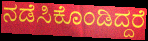
ನಡೆಸಿಕೊಂಡಿದ್ದರೆ